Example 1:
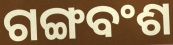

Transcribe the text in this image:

ଗଙ୍ଗବଂଶ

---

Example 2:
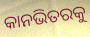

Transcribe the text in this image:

କାନଭିତରକୁ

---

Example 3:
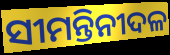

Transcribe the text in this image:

ସୀମନ୍ତିନୀଦଳ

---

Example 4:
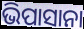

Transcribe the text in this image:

ଭିପାସାନା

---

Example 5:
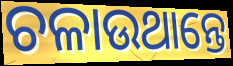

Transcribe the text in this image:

ଚଳାଉଥାନ୍ତେ